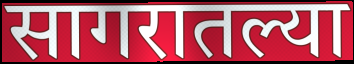
सागरातल्या